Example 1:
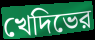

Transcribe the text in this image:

খেদিভের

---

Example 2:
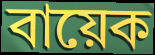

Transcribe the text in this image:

বায়েক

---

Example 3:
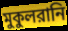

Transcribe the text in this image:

মুকুলরানি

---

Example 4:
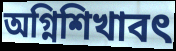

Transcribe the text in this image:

অগ্নিশিখাবৎ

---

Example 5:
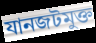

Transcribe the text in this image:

যানজটমুক্ত